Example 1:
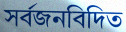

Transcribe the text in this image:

সর্বজনবিদিত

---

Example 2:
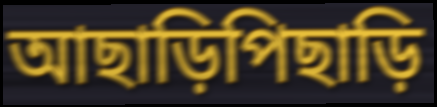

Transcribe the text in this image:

আছাড়িপিছাড়ি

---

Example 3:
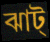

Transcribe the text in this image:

ঝাট্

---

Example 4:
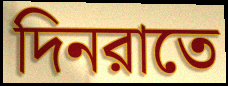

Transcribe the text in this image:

দিনরাতে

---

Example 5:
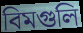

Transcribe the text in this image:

বিমগুলি